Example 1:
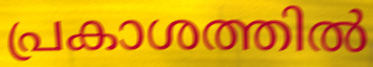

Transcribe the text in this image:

പ്രകാശത്തിൽ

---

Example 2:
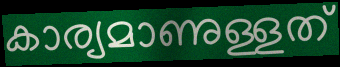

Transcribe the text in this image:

കാര്യമാണുള്ളത്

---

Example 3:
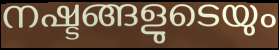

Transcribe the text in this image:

നഷ്ടങ്ങളുടെയും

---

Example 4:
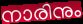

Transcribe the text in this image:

നാരിനും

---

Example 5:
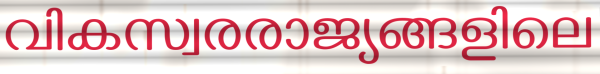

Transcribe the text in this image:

വികസ്വരരാജ്യങ്ങളിലെ